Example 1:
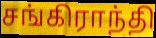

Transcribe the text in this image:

சங்கிராந்தி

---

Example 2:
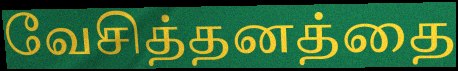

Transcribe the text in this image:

வேசித்தனத்தை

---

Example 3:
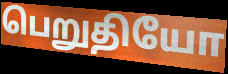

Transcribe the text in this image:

பெறுதியோ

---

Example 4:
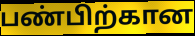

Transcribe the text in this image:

பண்பிற்கான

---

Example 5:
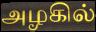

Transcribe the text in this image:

அழகில்